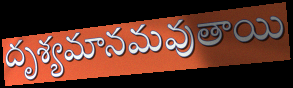
దృశ్యమానమవుతాయి